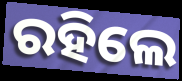
ରହିଲେ